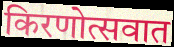
किरणोत्सवात